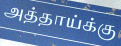
அத்தாய்க்கு